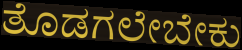
ತೊಡಗಲೇಬೇಕು